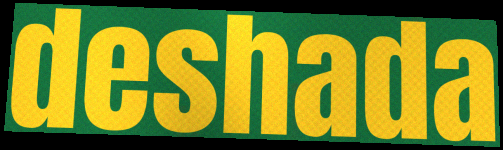
deshada